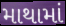
માથામાં